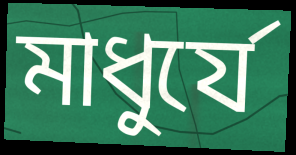
মাধুর্যে